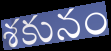
శకునం